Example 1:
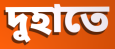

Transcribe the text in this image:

দুহাতে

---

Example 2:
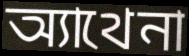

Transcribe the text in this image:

অ্যাথেনা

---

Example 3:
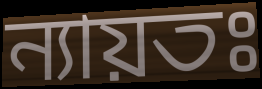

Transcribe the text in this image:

ন্যায়তঃ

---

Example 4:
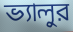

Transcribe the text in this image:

ভ্যালুর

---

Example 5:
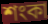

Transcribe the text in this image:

শংকা